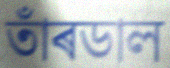
তাঁৰডাল